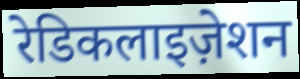
रेडिकलाइज़ेशन